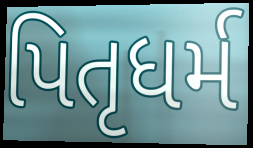
પિતૃધર્મ